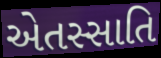
એતસ્સાતિ